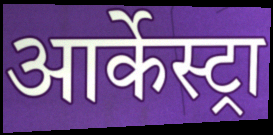
आर्केस्ट्रा